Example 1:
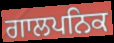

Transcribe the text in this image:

ਗਾਲਪਨਿਕ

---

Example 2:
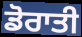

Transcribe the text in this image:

ਡੋਰਾਤੀ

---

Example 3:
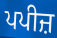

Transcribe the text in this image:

ਪਪੀਜ਼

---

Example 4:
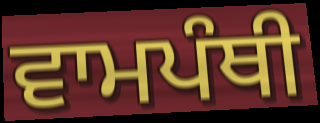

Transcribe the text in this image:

ਵਾਮਪੰਥੀ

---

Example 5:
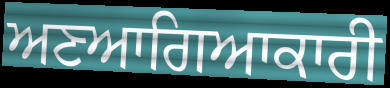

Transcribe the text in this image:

ਅਣਆਗਿਆਕਾਰੀ